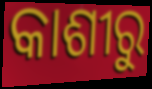
କାଶୀରୁ